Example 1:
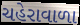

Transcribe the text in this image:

ચહેરાવાળા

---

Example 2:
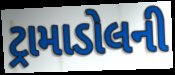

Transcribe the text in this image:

ટ્રામાડોલની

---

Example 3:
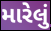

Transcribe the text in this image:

મારેલું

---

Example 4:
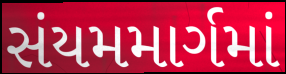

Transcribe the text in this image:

સંયમમાર્ગમાં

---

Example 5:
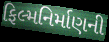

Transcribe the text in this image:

ફિલ્મનિર્માણની